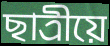
ছাত্ৰীয়ে